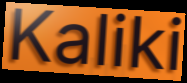
Kaliki